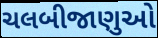
ચલબીજાણુઓ